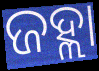
ଜହ୍ଲା